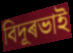
বিদূৰভাই